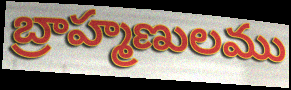
బ్రాహ్మణులము